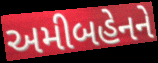
અમીબહેનને